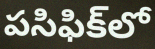
పసిఫిక్‌లో